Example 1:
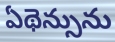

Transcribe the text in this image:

ఏథెన్సును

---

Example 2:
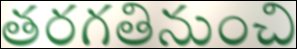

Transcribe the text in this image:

తరగతినుంచి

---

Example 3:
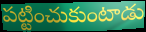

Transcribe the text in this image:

పట్టించుకుంటాడు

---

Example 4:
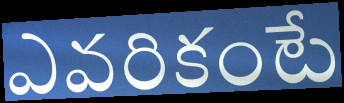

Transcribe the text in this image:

ఎవరికంటే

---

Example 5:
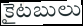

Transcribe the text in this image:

కైటబులు